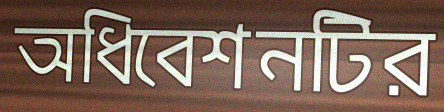
অধিবেশনটির